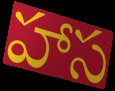
హాస